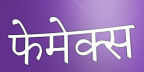
फेमेक्स